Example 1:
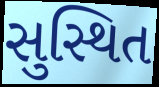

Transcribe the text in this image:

સુસ્થિત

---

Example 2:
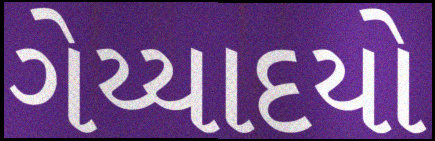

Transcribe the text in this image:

ગેય્યાદયો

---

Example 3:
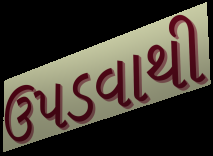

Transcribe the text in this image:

ઉપડવાથી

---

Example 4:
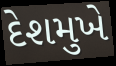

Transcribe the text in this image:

દેશમુખે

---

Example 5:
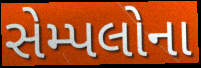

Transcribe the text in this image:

સેમ્પલોના